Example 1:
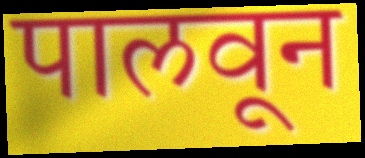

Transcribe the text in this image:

पालवून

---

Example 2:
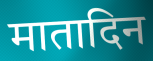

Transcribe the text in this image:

मातादिन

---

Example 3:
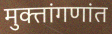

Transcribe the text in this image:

मुक्तांगणांत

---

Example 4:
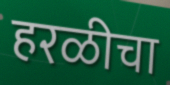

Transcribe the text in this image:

हरळीचा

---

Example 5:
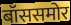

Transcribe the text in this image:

बॉससमोर